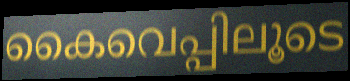
കൈവെപ്പിലൂടെ